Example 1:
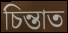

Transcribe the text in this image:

চিন্তাত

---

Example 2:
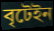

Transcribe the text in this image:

বৃটেইন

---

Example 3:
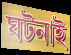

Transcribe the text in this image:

ঘটনাই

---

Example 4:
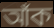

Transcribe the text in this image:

আঁক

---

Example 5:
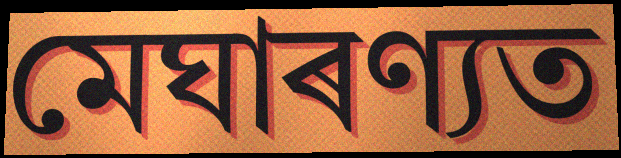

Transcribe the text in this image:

মেঘাৰণ্যত